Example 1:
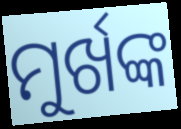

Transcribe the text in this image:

ମୁର୍ଖଙ୍କ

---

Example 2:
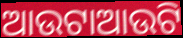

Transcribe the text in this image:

ଆଉଟାଆଉଟି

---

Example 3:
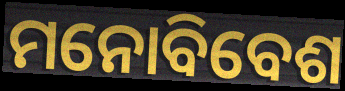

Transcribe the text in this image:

ମନୋବିବେଶ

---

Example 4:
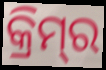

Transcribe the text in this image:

କ୍ରିମ୍‌ର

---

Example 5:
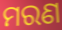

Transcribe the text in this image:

ମରଣ